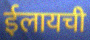
ईलायची